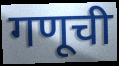
गणूची